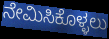
ನೇಮಿಸಿಕೊಳ್ಳಲು